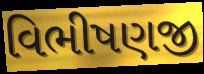
વિભીષણજી